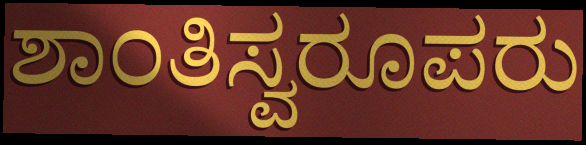
ಶಾಂತಿಸ್ವರೂಪರು